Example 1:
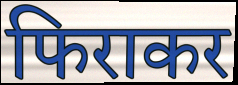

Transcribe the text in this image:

फिराकर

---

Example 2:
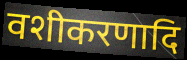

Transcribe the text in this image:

वशीकरणादि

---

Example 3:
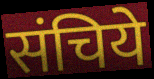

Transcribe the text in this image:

संचिये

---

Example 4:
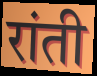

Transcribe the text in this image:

रांती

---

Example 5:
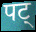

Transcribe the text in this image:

पट्